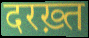
दरख़्त